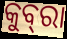
କୁବ୍‍ରା